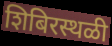
शिबिरस्थळी